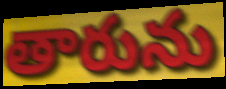
తారును